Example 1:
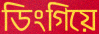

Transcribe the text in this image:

ডিংগিয়ে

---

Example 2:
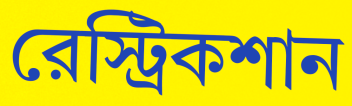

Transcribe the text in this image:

রেস্ট্রিকশান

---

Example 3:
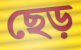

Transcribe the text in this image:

ছেড়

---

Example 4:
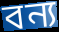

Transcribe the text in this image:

বন্য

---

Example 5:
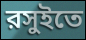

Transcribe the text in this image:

রসুইতে